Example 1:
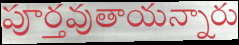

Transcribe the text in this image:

పూర్తవుతాయన్నారు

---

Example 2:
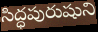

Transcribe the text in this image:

సిద్ధపురుషుని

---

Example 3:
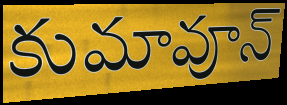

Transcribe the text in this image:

కుమావూన్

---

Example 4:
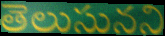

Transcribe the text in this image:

తెలుసునని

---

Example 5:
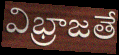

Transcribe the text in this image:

విభ్రాజతే